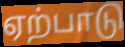
ஏற்பாடு